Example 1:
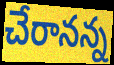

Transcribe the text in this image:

చేరానన్న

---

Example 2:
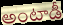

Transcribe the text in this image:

అంటాడీ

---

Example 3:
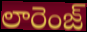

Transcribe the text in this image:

లారెంజ్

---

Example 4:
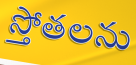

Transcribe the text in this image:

స్తోతలను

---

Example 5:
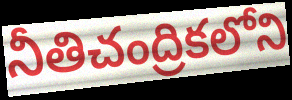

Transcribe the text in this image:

నీతిచంద్రికలోని